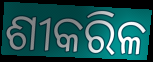
ଶୀକରିଳ